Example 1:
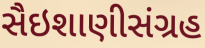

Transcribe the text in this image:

સૈઇશાણીસંગ્રહ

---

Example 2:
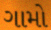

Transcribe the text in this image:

ગામો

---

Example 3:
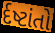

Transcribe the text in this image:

ર્દષ્ટાંતો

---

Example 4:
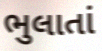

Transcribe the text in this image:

ભુલાતાં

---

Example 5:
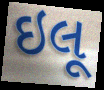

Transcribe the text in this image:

ઇલૂ